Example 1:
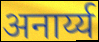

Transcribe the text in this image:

अनार्य्य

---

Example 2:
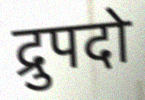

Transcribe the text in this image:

द्रुपदो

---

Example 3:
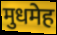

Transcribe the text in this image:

मुधमेह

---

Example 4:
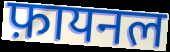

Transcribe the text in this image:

फ़ायनल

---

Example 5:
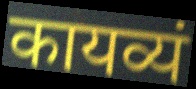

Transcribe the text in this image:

कायव्यं